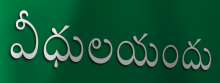
వీధులయందు